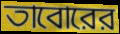
তাবোরের